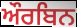
ਔਰਬਿਨ